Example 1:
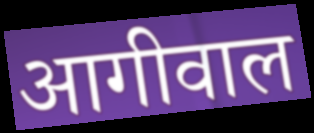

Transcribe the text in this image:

आगीवाल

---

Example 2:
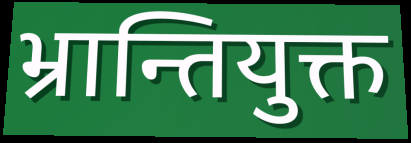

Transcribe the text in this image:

भ्रान्तियुक्त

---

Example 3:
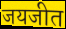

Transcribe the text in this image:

जयजीत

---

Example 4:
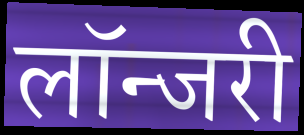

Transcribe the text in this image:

लॉन्जरी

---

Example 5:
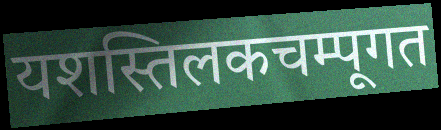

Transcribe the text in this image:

यशस्तिलकचम्पूगत